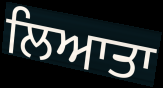
ਲਿਆਤਾ